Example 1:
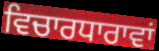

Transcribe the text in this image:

ਵਿਚਾਰਧਾਰਾਵਾਂ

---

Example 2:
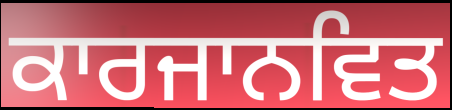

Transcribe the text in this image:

ਕਾਰਜਾਨਵਿਤ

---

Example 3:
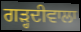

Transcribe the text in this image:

ਗਡ਼੍ਹਦੀਵਾਲਾ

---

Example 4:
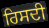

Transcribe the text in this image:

ਰਿਸਦੀ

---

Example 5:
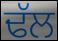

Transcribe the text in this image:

ਢੱਲ